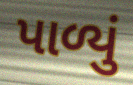
પાળ્યું